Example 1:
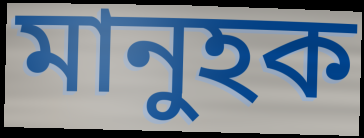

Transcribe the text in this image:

মানুহক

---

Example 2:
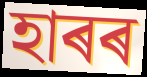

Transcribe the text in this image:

হাৰৰ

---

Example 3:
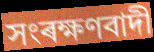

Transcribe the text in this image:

সংৰক্ষণবাদী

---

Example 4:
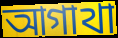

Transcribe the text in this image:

আগাথা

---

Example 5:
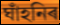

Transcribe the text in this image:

ঘাঁহনিৰ